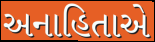
અનાહિતાએ